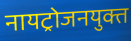
नायट्रोजनयुक्त